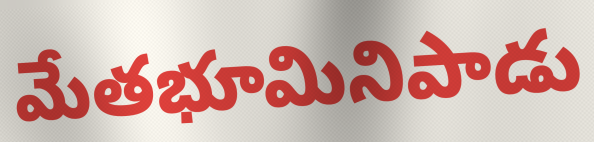
మేతభూమినిపాడు